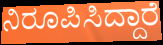
ನಿರೂಪಿಸಿದ್ದಾರೆ